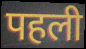
पहली